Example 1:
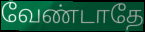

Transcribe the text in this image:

வேண்டாதே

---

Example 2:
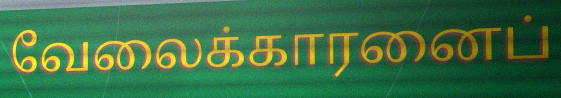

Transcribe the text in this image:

வேலைக்காரனைப்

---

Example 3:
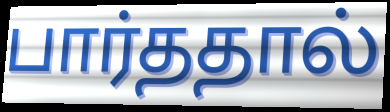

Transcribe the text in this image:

பார்ததால்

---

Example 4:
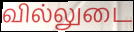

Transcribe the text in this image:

வில்லுடை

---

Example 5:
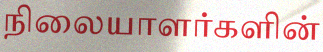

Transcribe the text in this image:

நிலையாளர்களின்